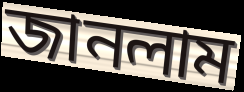
জানলাম